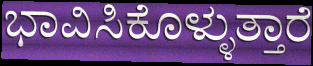
ಭಾವಿಸಿಕೊಳ್ಳುತ್ತಾರೆ